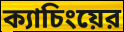
ক্যাচিংয়ের